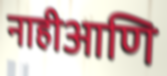
नाहीआणि